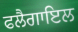
ਫਲੈਗਾਇਲ